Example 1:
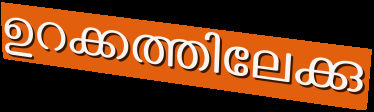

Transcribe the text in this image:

ഉറക്കത്തിലേക്കു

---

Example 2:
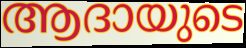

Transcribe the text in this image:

ആദായുടെ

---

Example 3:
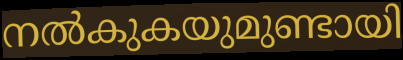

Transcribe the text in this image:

നൽകുകയുമുണ്ടായി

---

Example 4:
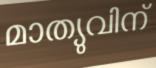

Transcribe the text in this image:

മാത്യുവിന്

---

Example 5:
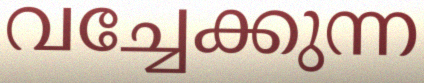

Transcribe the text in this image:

വച്ചേക്കുന്ന